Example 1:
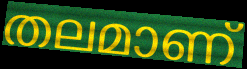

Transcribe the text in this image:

തലമാണ്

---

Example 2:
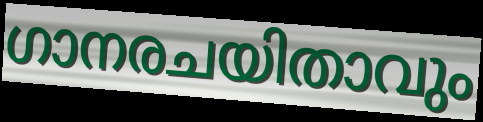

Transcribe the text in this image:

ഗാനരചയിതാവും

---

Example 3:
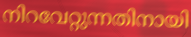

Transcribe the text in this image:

നിറവേറ്റുന്നതിനായി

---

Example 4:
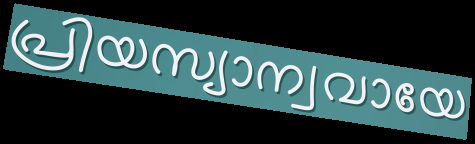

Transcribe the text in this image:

പ്രിയസ്യാന്വവായേ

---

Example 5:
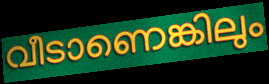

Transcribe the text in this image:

വീടാണെങ്കിലും